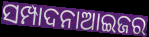
ସମ୍ପାଦନାଆଇଜର